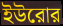
ইউরোর